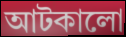
আটকালো